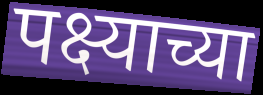
पक्ष्याच्या